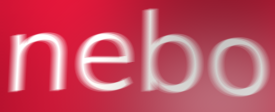
nebo